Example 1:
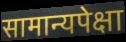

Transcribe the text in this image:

सामान्यपेक्षा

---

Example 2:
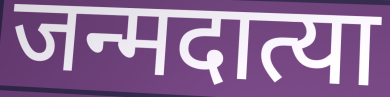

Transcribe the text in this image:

जन्मदात्या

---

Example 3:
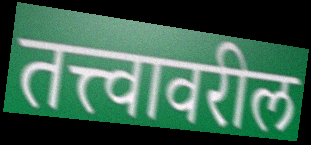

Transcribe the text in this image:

तत्त्वावरील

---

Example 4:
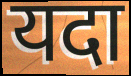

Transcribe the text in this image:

यदा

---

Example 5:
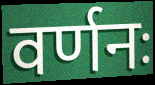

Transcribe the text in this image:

वर्णनः